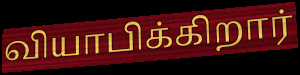
வியாபிக்கிறார்